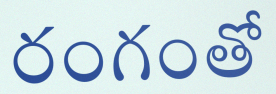
రంగంతో